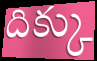
దిక్కు